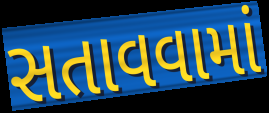
સતાવવામાં